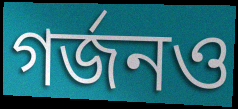
গর্জনও